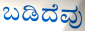
ಬಡಿದೆವು